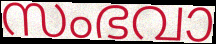
സംഭവാ